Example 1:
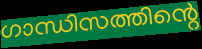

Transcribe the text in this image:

ഗാന്ധിസത്തിന്റെ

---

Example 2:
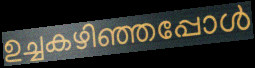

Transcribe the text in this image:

ഉച്ചകഴിഞ്ഞപ്പോൾ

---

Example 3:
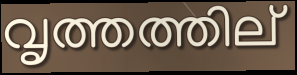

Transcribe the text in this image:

വൃത്തത്തില്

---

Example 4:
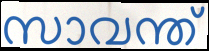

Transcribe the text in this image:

സാവന്ത്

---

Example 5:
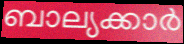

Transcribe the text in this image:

ബാല്യക്കാർ